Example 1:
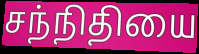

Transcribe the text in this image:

சந்நிதியை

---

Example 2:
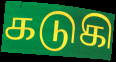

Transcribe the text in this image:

கடுகி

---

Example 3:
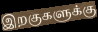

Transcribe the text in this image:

இறகுகளுக்கு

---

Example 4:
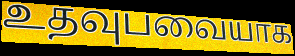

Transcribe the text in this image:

உதவுபவையாக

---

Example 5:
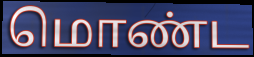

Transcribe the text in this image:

மொண்ட